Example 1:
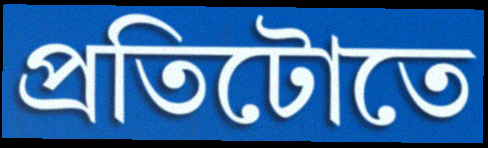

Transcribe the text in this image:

প্ৰতিটোতে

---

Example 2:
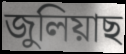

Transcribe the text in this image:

জুলিয়াছ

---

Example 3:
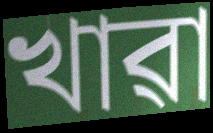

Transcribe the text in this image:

খাৱা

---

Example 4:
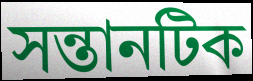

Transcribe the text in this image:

সন্তানটিক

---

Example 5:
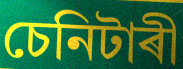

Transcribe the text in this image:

চেনিটাৰী